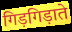
गिड़गिड़ाते